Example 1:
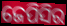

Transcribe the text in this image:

ଜେପିସିର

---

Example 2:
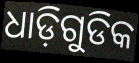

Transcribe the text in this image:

ଧାଡ଼ିଗୁଡିକ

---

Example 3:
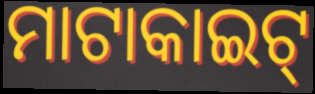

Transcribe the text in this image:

ମାଟାକାଇଟ୍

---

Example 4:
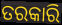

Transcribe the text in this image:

ତରକାରି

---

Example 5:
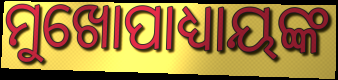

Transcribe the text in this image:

ମୁଖୋପାଧ୍ୟାୟଙ୍କ